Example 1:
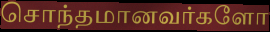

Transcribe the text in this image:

சொந்தமானவர்களோ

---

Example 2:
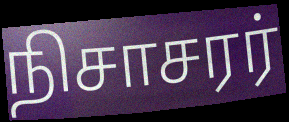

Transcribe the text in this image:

நிசாசரர்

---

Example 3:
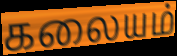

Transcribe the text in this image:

கலையம்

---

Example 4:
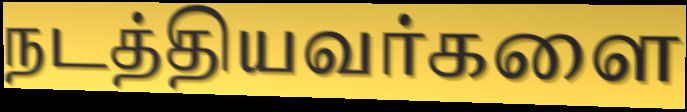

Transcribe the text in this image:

நடத்தியவர்களை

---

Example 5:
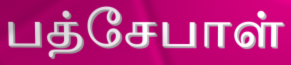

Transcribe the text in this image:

பத்சேபாள்